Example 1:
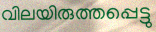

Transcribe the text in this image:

വിലയിരുത്തപ്പെട്ടു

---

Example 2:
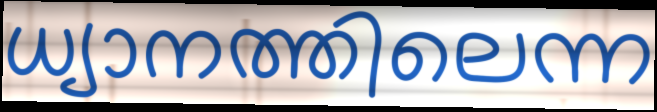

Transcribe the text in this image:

ധ്യാനത്തിലെന്ന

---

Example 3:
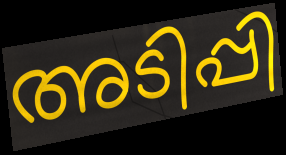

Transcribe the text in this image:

അടിപ്പി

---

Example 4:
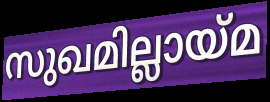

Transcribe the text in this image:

സുഖമില്ലായ്മ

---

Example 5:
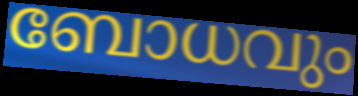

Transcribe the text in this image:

ബോധവും